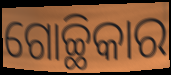
ଗୋଚ୍ଛିକାର